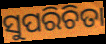
ସୁପରିଚିତା